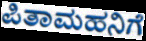
ಪಿತಾಮಹನಿಗೆ